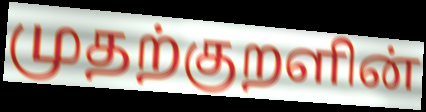
முதற்குறளின்